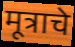
मूत्राचे